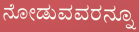
ನೋಡುವವರನ್ನೂ